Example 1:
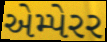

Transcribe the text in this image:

એમ્પેરર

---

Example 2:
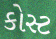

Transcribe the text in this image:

કોસ્ટ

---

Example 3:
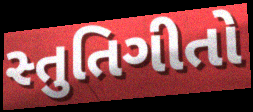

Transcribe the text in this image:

સ્તુતિગીતો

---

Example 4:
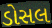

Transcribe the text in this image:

ડોસલ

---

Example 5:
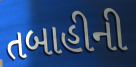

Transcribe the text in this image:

તબાહીની